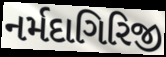
નર્મદાગિરિજી